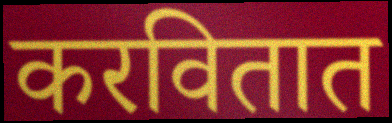
करवितात